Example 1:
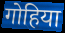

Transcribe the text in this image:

गोहिया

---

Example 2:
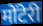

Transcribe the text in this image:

मोंटेरी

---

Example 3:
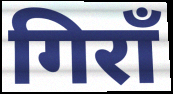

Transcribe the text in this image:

गिराँ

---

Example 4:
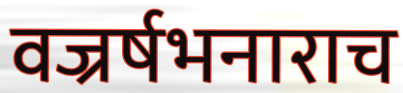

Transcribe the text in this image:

वज्रर्षभनाराच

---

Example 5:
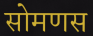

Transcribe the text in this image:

सोमणस